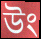
উং